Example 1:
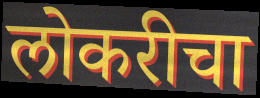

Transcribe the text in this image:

लोकरीचा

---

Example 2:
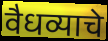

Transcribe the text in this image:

वैधव्याचे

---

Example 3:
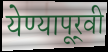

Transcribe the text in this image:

येण्यापूर्वी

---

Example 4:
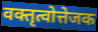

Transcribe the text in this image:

वक्तृत्वोत्तेजक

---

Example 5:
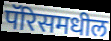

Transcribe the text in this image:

पॅरिसमधील